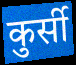
कुर्सी